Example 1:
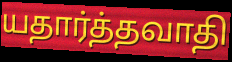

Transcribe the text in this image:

யதார்த்தவாதி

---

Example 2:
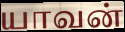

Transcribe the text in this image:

யாவன்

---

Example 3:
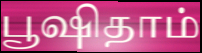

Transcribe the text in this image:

பூஷிதாம்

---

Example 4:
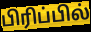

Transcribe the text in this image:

பிரிப்பில்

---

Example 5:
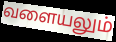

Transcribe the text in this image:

வளையலும்